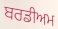
ਬਰਡੀਅਮ